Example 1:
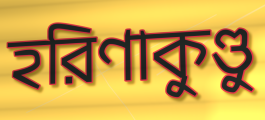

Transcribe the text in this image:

হরিণাকুণ্ডু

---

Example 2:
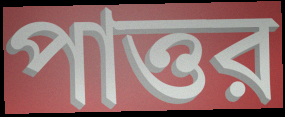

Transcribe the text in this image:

পাত্তর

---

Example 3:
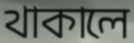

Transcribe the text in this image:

থাকালে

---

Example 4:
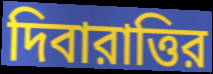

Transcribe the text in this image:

দিবারাত্তির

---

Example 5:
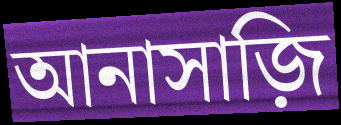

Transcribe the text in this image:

আনাসাজ়ি